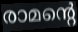
രാമന്റെ